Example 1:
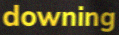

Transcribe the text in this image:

downing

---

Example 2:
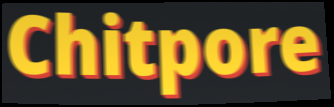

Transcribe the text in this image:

Chitpore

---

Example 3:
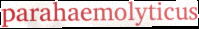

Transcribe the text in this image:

parahaemolyticus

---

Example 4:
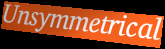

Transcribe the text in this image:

Unsymmetrical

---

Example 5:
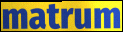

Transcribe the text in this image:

matrum